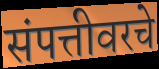
संपत्तीवरचे